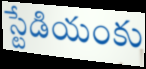
స్టేడియంకు